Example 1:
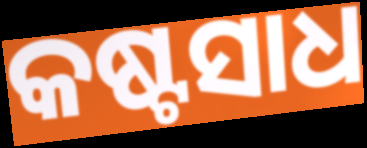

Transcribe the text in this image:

କଷ୍ଟସାଧ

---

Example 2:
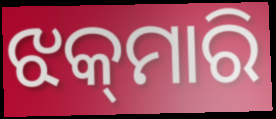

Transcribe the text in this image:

ଝକ୍‌ମାରି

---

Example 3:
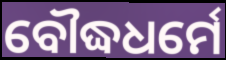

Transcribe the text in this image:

ବୌଦ୍ଧଧର୍ମେ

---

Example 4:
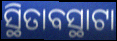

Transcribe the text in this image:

ସ୍ଥିତାବସ୍ଥାଟା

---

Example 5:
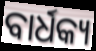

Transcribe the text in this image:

ବାର୍ଧକ୍ୟ